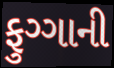
ફુગ્ગાની